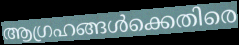
ആഗ്രഹങ്ങൾക്കെതിരെ